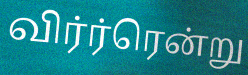
விர்ர்ரென்று